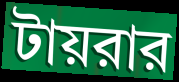
টায়রার